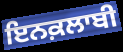
ਇਨਕ਼ਲਾਬੀ